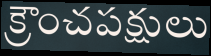
క్రౌంచపక్షులు